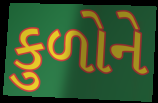
કુળોને